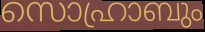
സൊഹ്രാബും